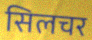
सिलचर